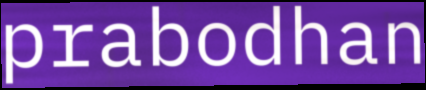
prabodhan